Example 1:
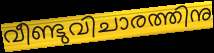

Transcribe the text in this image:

വീണ്ടുവിചാരത്തിനു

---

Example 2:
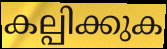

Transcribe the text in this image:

കല്പിക്കുക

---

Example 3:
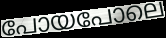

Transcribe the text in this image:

പോയപോലെ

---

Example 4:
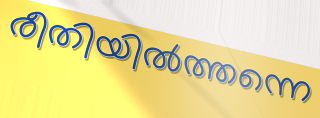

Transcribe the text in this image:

രീതിയിൽത്തന്നെ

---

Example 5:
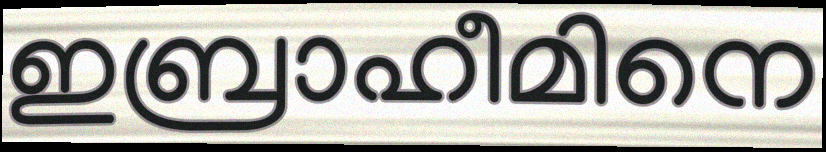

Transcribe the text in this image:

ഇബ്രാഹീമിനെ